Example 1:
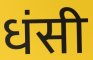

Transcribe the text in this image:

धंसी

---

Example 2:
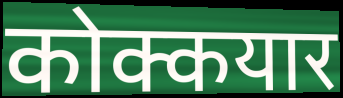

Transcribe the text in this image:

कोक्कयार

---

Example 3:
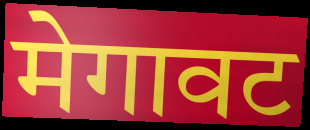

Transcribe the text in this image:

मेगावट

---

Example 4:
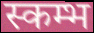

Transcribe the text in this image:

स्कम्भ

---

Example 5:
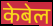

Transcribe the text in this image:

केबेल